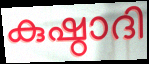
കുഷ്ഠാദി